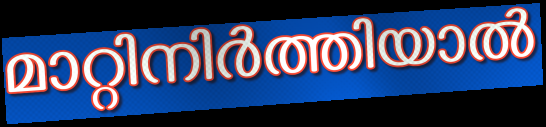
മാറ്റിനിർത്തിയാൽ